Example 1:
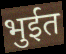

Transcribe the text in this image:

भुईत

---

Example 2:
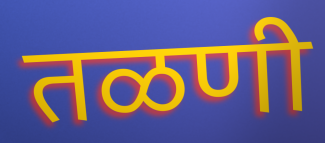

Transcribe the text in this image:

तळणी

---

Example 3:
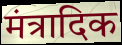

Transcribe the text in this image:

मंत्रादिक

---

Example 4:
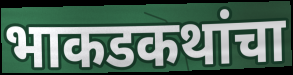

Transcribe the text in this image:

भाकडकथांचा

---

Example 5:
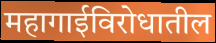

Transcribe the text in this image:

महागाईविरोधातील